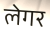
लेगर